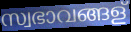
സ്വഭാവങ്ങള്